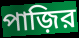
পাজ়ির